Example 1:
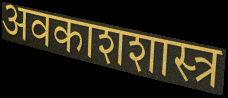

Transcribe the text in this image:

अवकाशशास्त्र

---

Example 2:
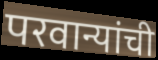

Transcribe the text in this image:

परवान्यांची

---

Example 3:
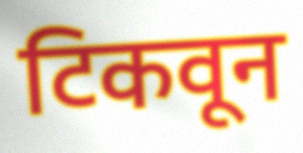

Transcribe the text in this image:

टिकवून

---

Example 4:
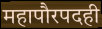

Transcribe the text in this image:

महापौरपदही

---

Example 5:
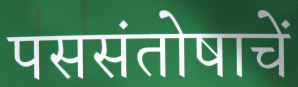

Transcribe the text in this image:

पससंतोषाचें